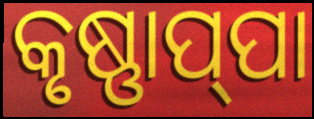
କୃଷ୍ଣାପ୍‌ପା